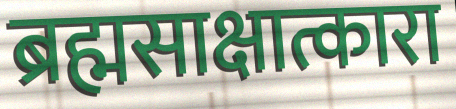
ब्रह्मसाक्षात्कारा